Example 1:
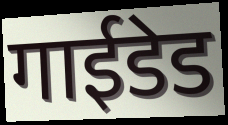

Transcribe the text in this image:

गाईडेड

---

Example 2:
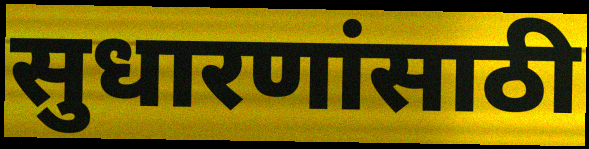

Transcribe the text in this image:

सुधारणांसाठी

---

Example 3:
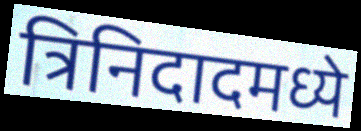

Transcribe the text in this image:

त्रिनिदादमध्ये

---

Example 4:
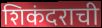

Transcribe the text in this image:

शिकंदराची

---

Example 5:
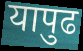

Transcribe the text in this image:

यापुढ